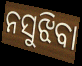
ନସୁଝିବା